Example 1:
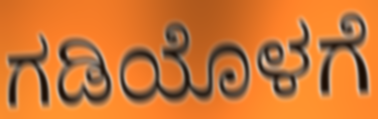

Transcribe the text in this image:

ಗಡಿಯೊಳಗೆ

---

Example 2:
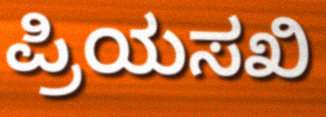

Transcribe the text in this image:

ಪ್ರಿಯಸಖಿ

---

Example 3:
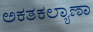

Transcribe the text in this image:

ಅಕತಕಲ್ಯಾಣಾ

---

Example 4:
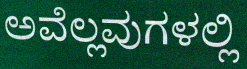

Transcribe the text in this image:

ಅವೆಲ್ಲವುಗಳಲ್ಲಿ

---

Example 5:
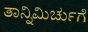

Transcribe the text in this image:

ತಾನ್ನಿಮಿರ್ಚುಗೆ